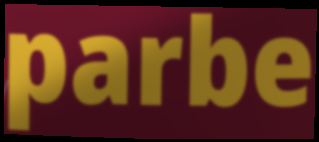
parbe